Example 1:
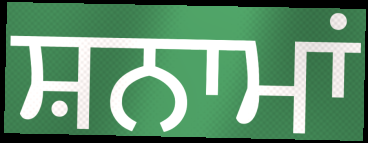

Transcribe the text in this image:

ਸ਼ਨਾਮਾਂ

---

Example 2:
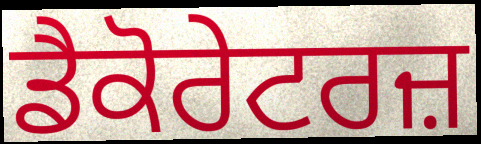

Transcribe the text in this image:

ਡੈਕੋਰੇਟਰਜ਼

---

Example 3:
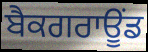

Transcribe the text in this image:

ਬੈਕਗਰਾਊਂਡ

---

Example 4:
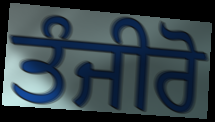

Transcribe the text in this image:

ਤੰਜੀਰੋ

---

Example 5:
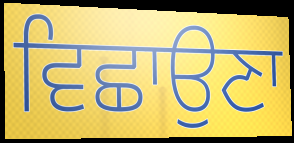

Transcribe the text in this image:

ਵਿਛਾਉਣਾ